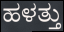
ಹಳತ್ತು